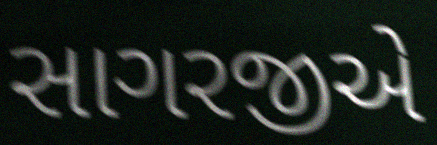
સાગરજીએ